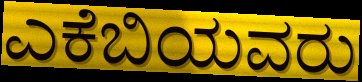
ಎಕೆಬಿಯವರು